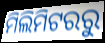
ମିଲିମିଟରରୁ